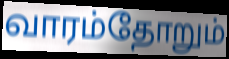
வாரம்தோறும்